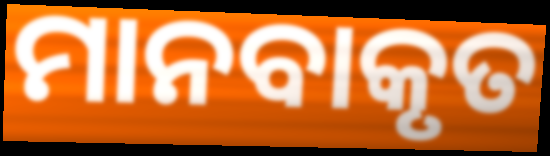
ମାନବାକୃତ